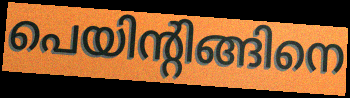
പെയിന്റിങ്ങിനെ